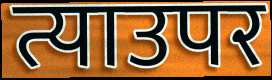
त्याउपर